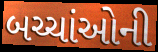
બચ્ચાંઓની